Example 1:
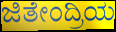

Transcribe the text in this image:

ಜಿತೇಂದ್ರಿಯ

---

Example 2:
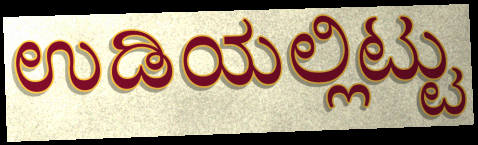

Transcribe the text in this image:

ಉಡಿಯಲ್ಲಿಟ್ಟು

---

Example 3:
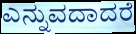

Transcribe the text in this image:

ಎನ್ನುವದಾದರೆ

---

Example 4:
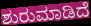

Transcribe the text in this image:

ಶುರುಮಾಡಿದೆ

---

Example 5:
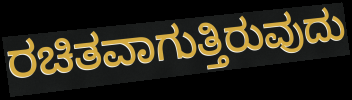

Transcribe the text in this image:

ರಚಿತವಾಗುತ್ತಿರುವುದು